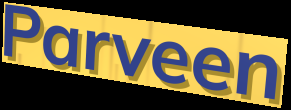
Parveen